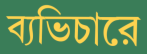
ব্যভিচারে